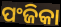
ପଂଜିକା